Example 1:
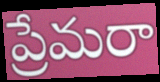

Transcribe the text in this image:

ప్రేమరా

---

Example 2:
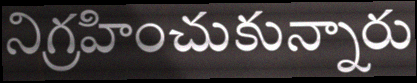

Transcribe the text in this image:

నిగ్రహించుకున్నారు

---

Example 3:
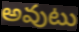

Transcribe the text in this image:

అవుటు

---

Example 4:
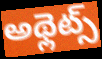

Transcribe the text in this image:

అథ్లెట్స్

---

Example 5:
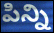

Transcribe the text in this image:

పిన్ని